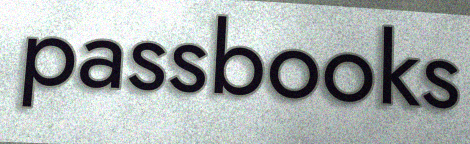
passbooks